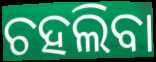
ଚହଲିବା